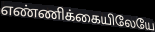
எண்ணிக்கையிலேயே